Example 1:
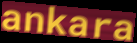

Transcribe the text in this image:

ankara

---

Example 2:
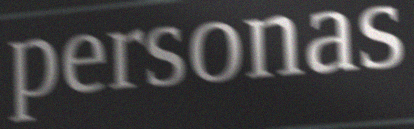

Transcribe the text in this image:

personas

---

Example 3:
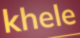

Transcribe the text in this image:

khele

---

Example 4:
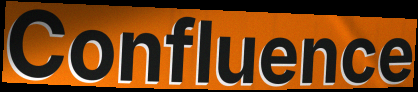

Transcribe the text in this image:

Confluence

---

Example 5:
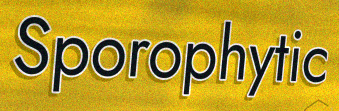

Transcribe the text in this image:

Sporophytic